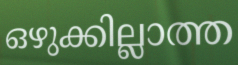
ഒഴുക്കില്ലാത്ത